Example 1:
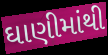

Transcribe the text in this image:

ઘાણીમાંથી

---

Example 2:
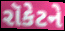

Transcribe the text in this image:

રૉકેટને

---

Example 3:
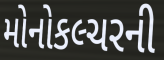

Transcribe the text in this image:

મોનોકલ્ચરની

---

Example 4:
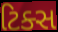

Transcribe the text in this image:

ટિક્સ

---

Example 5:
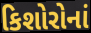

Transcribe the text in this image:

કિશોરોનાં